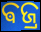
ଵଜ୍ର